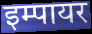
इम्पायर